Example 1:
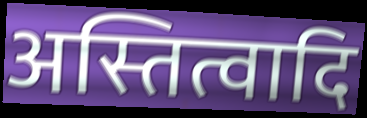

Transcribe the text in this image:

अस्तित्वादि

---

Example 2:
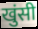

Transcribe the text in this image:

खुंसी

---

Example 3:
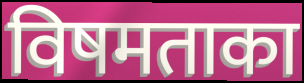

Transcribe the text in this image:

विषमताका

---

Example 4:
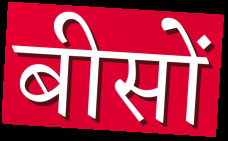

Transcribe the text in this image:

बीसों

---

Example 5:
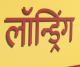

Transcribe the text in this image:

लॉन्ड्रिंग